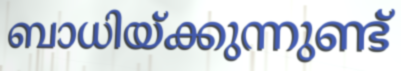
ബാധിയ്ക്കുന്നുണ്ട്